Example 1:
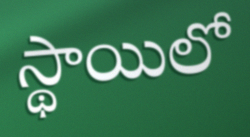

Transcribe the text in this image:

స్థాయిలో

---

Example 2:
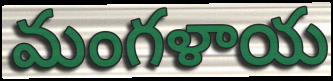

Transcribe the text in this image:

మంగళాయ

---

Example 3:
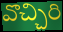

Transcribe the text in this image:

వొచ్చిరి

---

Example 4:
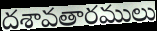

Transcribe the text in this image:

దశావతారములు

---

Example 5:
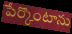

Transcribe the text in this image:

పేర్కొంటాను